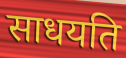
साधयति